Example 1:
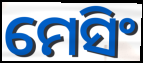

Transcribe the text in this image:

ମେସିଂ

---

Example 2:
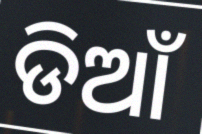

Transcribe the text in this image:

ଡିଆଁ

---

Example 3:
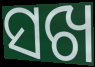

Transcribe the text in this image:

ସଖ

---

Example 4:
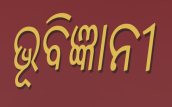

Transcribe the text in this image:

ଭୂବିଜ୍ଞାନୀ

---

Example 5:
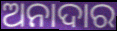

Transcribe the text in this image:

ଅନାଦାର